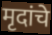
मृदांचे